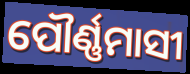
ପୌର୍ଣ୍ଣମାସୀ